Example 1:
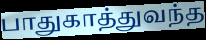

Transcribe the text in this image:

பாதுகாத்துவந்த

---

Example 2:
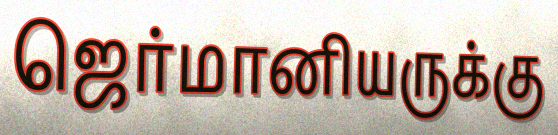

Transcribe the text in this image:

ஜெர்மானியருக்கு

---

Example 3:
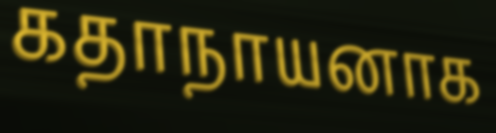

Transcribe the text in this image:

கதாநாயனாக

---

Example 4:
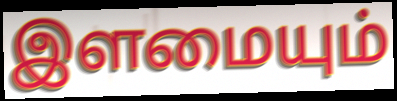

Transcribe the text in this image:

இளமையும்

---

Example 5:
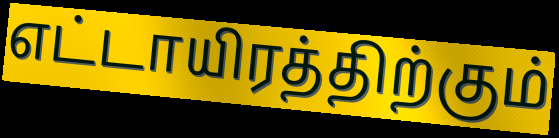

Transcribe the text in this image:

எட்டாயிரத்திற்கும்